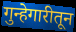
गुन्हेगारीतून